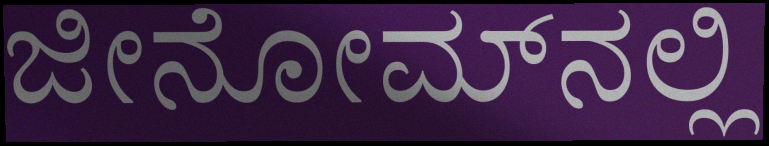
ಜೀನೋಮ್‌ನಲ್ಲಿ